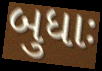
બુધાઃ